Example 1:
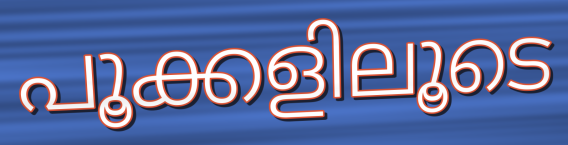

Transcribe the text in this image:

പൂക്കളിലൂടെ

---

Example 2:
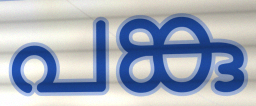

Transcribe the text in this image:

പങ്കു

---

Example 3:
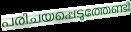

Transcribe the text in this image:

പരിചയപ്പെടുത്തേണ്ടി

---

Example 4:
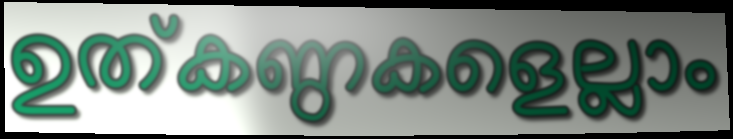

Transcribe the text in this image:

ഉത്കണ്ഠകളെല്ലാം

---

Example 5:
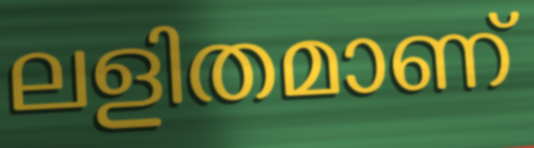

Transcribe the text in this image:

ലളിതമാണ്